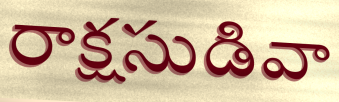
రాక్షసుడివా